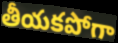
తీయకపోగా